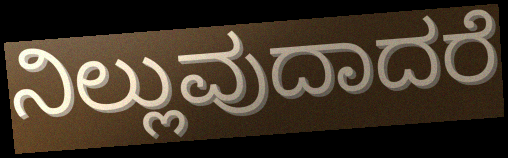
ನಿಲ್ಲುವುದಾದರೆ